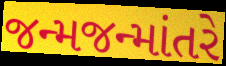
જન્મજન્માંતરે